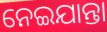
ନେଇଯାନ୍ତା